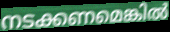
നടക്കണമെങ്കിൽ